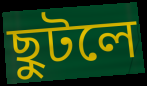
ছুটলে